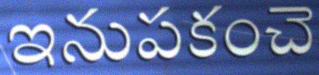
ఇనుపకంచె